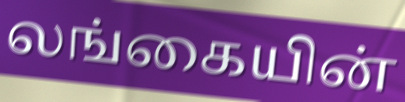
லங்கையின்